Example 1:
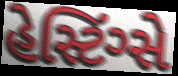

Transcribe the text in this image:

હેસ્ટિંગ્સે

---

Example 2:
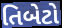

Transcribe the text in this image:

તિબેટો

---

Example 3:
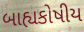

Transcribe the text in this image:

બાહ્યકોષીય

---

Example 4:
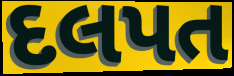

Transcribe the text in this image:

દલપત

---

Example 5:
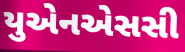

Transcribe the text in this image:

યુએનએસસી